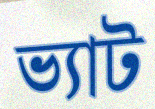
ভ্যাট